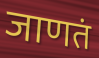
जाणतं